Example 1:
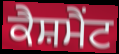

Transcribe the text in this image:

ਕੈਸ਼ਮੈਂਟ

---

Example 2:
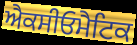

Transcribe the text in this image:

ਐਕਸੀਓਮੈਟਿਕ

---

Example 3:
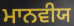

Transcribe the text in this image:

ਮਾਨਵੀਯ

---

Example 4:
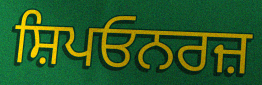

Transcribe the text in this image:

ਸ਼ਿਪਓਨਰਜ਼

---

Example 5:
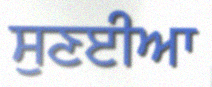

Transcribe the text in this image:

ਸੁਣਈਆ